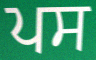
ਪਸ